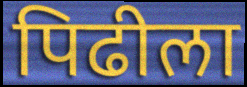
पिढीला